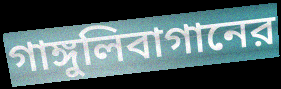
গাঙ্গুলিবাগানের